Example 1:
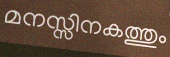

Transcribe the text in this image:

മനസ്സിനകത്തും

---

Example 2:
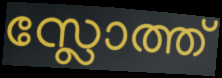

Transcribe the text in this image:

സ്ലോത്ത്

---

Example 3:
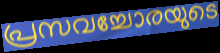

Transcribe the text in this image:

പ്രസവച്ചോരയുടെ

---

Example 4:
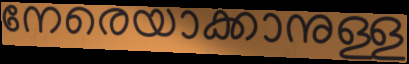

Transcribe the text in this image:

നേരെയാക്കാനുള്ള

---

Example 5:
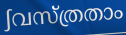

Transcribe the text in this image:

ഽവസ്ത്രതാം